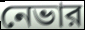
নেভার